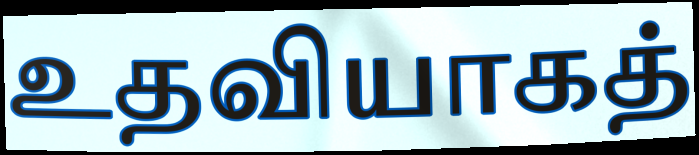
உதவியாகத்